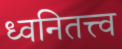
ध्वनितत्त्व